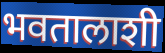
भवतालाशी